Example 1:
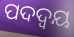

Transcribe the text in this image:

ପଦଦ୍ଵୟ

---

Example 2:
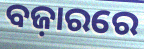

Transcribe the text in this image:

ବଜ଼ାରରେ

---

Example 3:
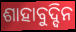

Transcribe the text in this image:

ଶାହାବୁଦ୍ଦିନ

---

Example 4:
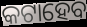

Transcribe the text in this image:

କଟାହେବ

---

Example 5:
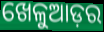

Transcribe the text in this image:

ଖେଳୁଆଡ଼ର